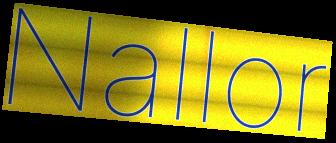
Nallor